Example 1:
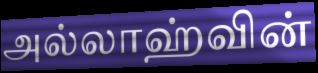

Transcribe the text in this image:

அல்லாஹ்வின்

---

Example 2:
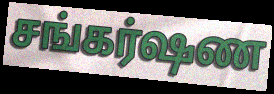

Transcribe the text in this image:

சங்கர்ஷண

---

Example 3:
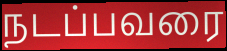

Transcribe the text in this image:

நடப்பவரை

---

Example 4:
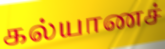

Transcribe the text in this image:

கல்யாணச்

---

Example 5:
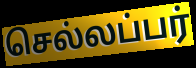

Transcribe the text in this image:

செல்லப்பர்